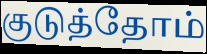
குடுத்தோம்